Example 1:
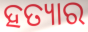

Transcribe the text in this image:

ହତ୍ୟାର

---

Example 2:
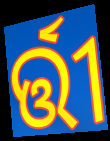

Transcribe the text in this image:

ର୍ତ୍ତୀ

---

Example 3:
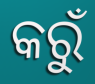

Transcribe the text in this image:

କରୁଁ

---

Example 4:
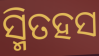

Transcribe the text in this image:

ସ୍ମିତହସ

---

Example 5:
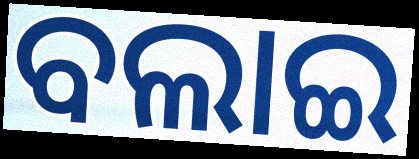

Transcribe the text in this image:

ବଲାଇ